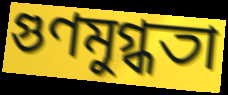
গুণমুগ্ধতা